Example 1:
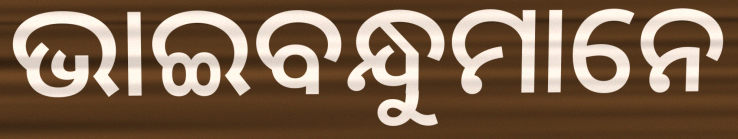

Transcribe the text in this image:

ଭାଇବନ୍ଧୁମାନେ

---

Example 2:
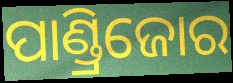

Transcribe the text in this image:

ପାଣ୍ଡ୍ରିଜୋର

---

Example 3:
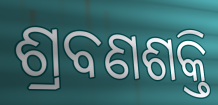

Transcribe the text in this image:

ଶ୍ରବଣଶକ୍ତି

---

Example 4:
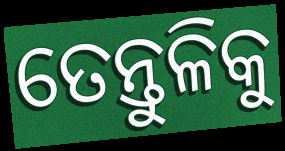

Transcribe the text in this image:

ତେନ୍ତୁଳିକୁ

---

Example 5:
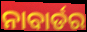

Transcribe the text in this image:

ନାବାର୍ଡର